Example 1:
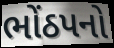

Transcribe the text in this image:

ભોંઠપનો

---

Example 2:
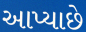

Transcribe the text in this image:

આપ્યાછે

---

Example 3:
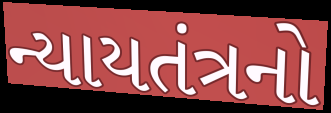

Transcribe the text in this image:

ન્યાયતંત્રનો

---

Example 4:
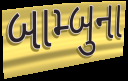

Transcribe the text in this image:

બામ્બુના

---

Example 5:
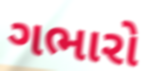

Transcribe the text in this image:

ગભારો